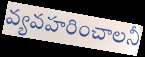
వ్యవహరించాలనీ